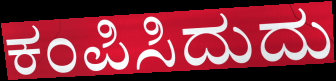
ಕಂಪಿಸಿದುದು